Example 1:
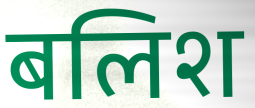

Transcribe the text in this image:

बलिश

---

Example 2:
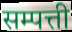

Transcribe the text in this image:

सम्पत्ती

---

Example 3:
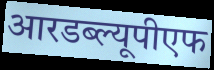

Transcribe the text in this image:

आरडब्ल्यूपीएफ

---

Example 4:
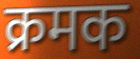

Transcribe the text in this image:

क्रमक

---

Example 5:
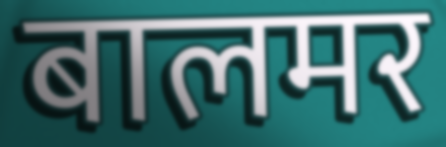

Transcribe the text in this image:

बालमर